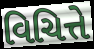
વિચિત્તે